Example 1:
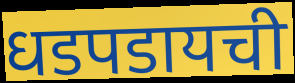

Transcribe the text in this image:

धडपडायची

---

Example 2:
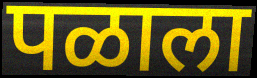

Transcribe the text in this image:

पळाला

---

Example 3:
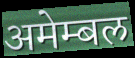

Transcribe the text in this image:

अमेम्बल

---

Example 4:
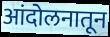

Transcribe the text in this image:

आंदोलनातून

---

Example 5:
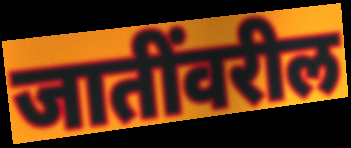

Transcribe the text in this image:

जातींवरील